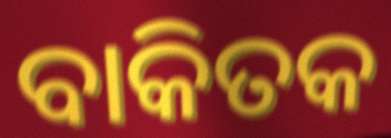
ବାକିତକ